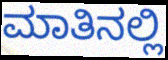
ಮಾತಿನಲ್ಲಿ